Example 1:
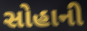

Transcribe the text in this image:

સોહાની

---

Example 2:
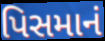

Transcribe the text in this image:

પિસમાનં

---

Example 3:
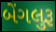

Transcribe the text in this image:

બેંગલુરૂ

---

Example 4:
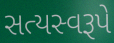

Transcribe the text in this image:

સત્યસ્વરૂપે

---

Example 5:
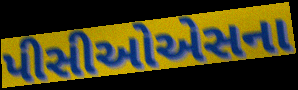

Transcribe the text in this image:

પીસીઓએસના